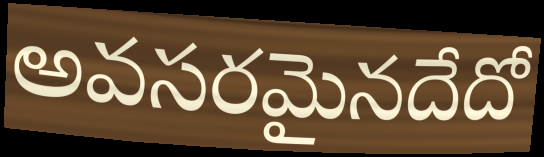
అవసరమైనదేదో